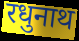
रधुनाथ